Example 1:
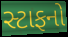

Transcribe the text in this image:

સ્ટાફનો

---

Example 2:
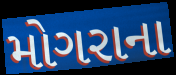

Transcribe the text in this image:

મોગરાના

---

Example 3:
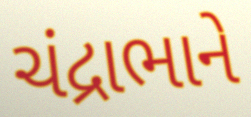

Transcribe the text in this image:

ચંદ્રાભાને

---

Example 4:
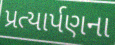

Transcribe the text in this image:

પ્રત્યાર્પણના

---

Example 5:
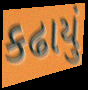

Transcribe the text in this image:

કઢાયું